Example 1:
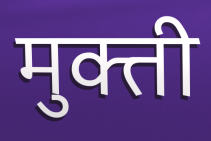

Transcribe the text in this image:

मुक्ती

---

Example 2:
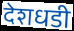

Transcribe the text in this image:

देशधडी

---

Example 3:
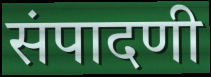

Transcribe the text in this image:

संपादणी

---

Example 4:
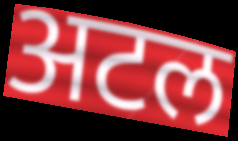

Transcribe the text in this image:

अटल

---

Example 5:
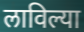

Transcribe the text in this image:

लाविल्या